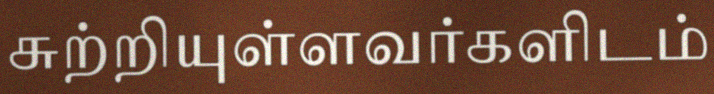
சுற்றியுள்ளவர்களிடம்